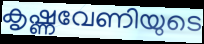
കൃഷ്ണവേണിയുടെ